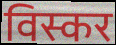
विस्कर